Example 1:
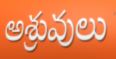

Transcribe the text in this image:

అశ్రువులు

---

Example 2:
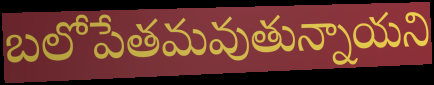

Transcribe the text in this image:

బలోపేతమవుతున్నాయని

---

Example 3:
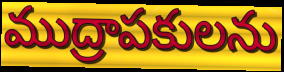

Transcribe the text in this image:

ముద్రాపకులను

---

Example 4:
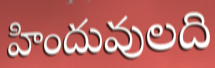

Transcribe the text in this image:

హిందువులది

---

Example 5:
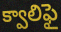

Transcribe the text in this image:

క్వాలిఫై